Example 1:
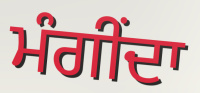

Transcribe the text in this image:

ਮੰਗੀਂਦਾ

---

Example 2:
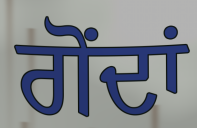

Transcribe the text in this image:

ਗੋਂਦਾਂ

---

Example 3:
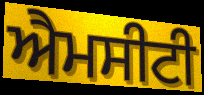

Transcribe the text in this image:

ਐਮਸੀਟੀ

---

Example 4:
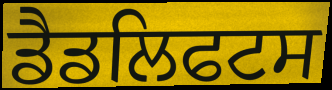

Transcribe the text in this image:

ਡੈਡਲਿਫਟਸ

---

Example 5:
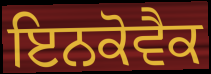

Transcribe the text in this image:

ਇਨਕੋਵੈਕ